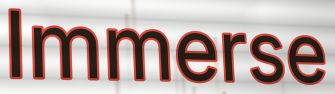
Immerse